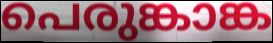
പെരുങ്കാങ്ക